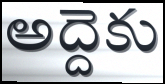
అద్దెకు